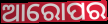
ଆରୋପର